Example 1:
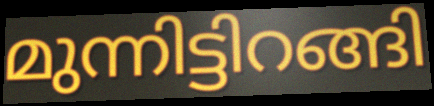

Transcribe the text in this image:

മുന്നിട്ടിറങ്ങി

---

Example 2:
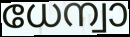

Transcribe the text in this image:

ധേന്വാ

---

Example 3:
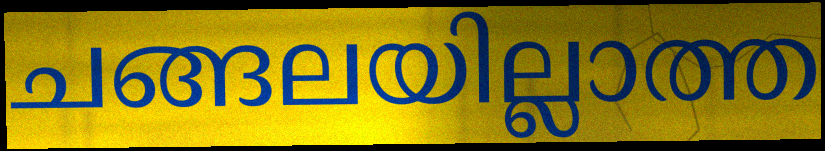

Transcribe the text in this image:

ചങ്ങലയില്ലാത്ത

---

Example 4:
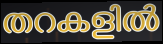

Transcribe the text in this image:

തറകളിൽ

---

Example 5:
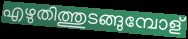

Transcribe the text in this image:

എഴുതിത്തുടങ്ങുമ്പോള്